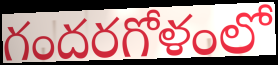
గందరగోళంలో